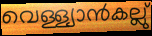
വെള്ള്യാൻകല്ലു്